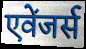
एवेंजर्स